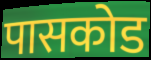
पासकोड